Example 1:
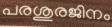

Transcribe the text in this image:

പരശുരജിനം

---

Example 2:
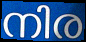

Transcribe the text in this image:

നിര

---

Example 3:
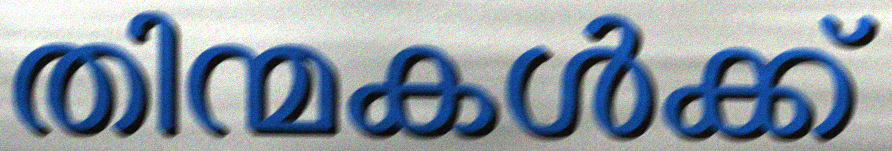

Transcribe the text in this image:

തിന്മകൾക്ക്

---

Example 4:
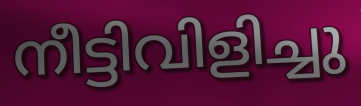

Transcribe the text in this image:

നീട്ടിവിളിച്ചു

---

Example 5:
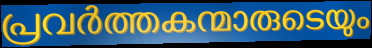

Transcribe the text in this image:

പ്രവർത്തകന്മാരുടെയും